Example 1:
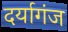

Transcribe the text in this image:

दर्यागंज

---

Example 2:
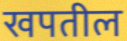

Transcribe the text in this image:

खपतील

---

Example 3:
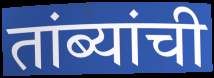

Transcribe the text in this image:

तांब्यांची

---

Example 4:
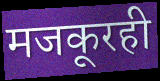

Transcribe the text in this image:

मजकूरही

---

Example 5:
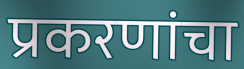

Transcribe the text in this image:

प्रकरणांचा